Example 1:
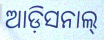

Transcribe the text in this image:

ଆଡ଼ିସନାଲ୍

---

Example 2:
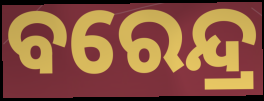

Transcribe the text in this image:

ବରେନ୍ଦ୍ର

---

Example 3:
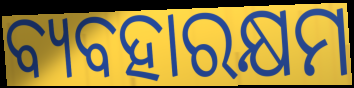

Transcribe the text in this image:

ବ୍ୟବହାରକ୍ଷମ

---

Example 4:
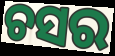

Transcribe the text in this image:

ଚସର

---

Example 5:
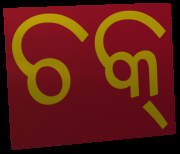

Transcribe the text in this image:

ଚକ୍